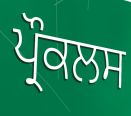
ਪ੍ਰੌਕਲਸ